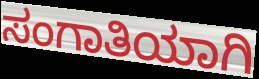
ಸಂಗಾತಿಯಾಗಿ